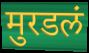
मुरडलं